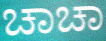
ಚಾಚಾ